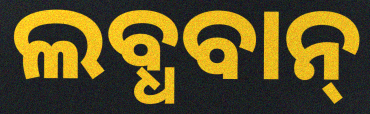
ଲବ୍ଧବାନ୍